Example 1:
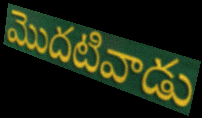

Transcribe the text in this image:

మొదటివాడు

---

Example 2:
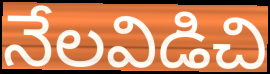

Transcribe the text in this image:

నేలవిడిచి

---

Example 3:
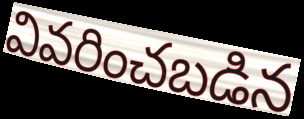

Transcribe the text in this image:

వివరించబడిన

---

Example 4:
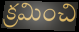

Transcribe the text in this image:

క్రమించి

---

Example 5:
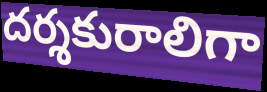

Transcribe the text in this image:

దర్శకురాలిగా